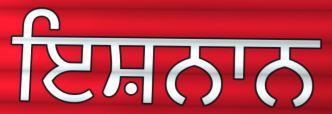
ਇਸ਼ਨਾਨ